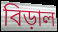
বিড়াল